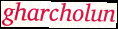
gharcholun